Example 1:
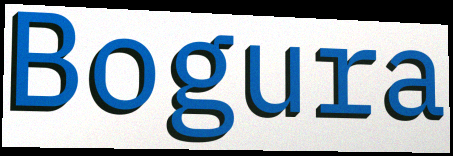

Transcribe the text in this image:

Bogura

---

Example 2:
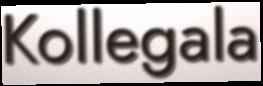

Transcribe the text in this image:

Kollegala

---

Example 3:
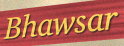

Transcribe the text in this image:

Bhawsar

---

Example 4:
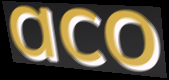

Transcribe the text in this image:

aco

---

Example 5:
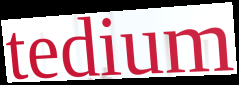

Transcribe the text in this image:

tedium